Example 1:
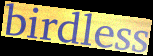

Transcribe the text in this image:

birdless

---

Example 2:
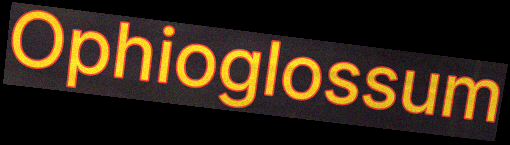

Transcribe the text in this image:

Ophioglossum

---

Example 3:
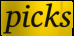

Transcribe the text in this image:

picks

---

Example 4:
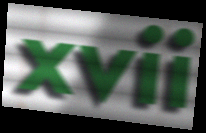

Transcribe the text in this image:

xvii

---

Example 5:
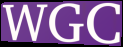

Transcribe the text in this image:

WGC